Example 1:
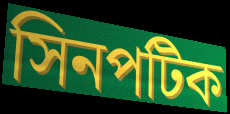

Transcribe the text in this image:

সিনপটিক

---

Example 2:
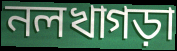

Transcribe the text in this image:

নলখাগড়া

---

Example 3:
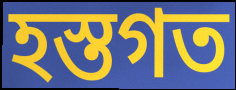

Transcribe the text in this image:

হস্তগত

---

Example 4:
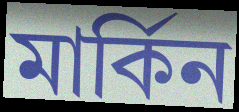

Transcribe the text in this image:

মার্কিন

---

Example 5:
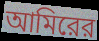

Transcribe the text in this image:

আমিরের